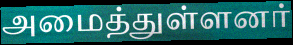
அமைத்துள்ளனர்